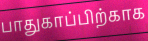
பாதுகாப்பிற்காக